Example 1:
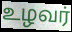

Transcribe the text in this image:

உழவர்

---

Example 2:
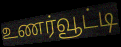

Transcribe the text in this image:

உணர்வூட்டி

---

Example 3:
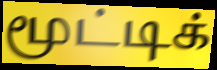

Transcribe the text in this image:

மூட்டிக்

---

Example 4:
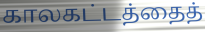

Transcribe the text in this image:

காலகட்டத்தைத்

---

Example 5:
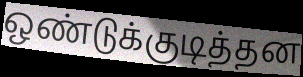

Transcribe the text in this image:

ஒண்டுக்குடித்தன